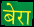
बेरा